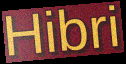
Hibri